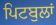
ਪਿਟਬੁਲਾਂ